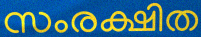
സംരക്ഷിത